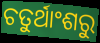
ଚତୁର୍ଥାଂଶରୁ